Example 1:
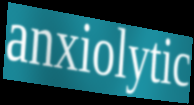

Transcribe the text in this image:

anxiolytic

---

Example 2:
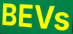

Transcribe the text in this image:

BEVs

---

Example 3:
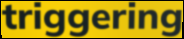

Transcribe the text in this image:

triggering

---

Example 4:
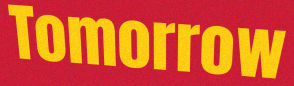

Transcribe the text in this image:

Tomorrow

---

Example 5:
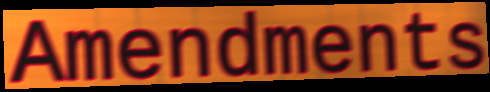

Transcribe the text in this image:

Amendments